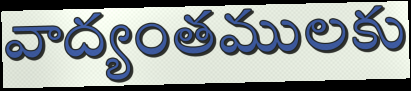
వాద్యంతములకు